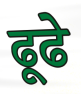
ढूढे